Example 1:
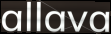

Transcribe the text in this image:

allava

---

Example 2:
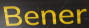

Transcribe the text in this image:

Bener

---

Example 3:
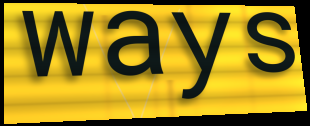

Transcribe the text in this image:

ways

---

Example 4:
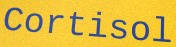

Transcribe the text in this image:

Cortisol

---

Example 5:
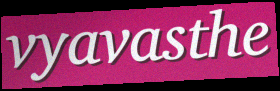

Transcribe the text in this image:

vyavasthe